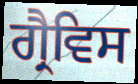
ਗ੍ਰੈਵਿਸ